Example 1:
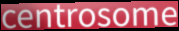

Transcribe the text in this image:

centrosome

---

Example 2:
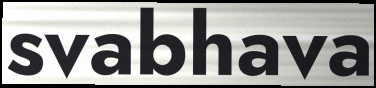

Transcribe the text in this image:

svabhava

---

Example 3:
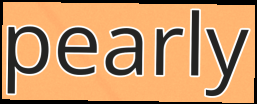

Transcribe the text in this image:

pearly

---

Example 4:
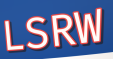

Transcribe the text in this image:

LSRW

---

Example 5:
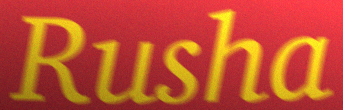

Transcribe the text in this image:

Rusha